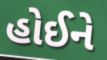
હોઈને